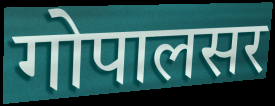
गोपालसर